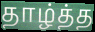
தாழ்த்த